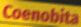
Coenobita